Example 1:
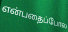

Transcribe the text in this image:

என்பதைப்போல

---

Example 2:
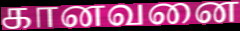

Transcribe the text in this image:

கானவனை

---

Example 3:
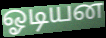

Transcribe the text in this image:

ஓடியன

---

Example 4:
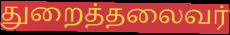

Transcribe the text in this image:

துறைத்தலைவர்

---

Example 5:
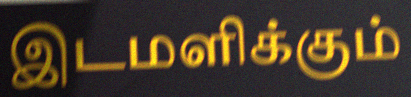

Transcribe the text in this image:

இடமளிக்கும்